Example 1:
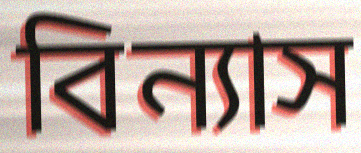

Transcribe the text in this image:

বিন্যাস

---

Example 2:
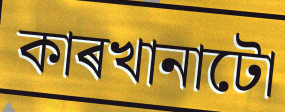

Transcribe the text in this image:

কাৰখানাটো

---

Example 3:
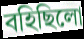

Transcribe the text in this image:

বহিছিলো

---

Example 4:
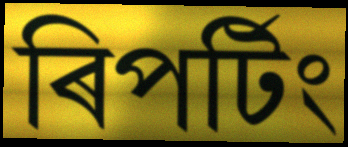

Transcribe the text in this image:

ৰিপৰ্টিং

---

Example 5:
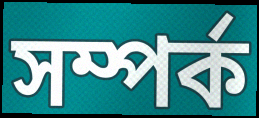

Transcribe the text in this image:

সম্পৰ্ক